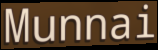
Munnai